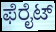
ಫೆರೈಟ್